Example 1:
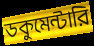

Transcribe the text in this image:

ডকুমেন্টারি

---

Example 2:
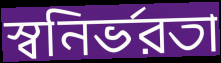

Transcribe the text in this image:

স্বনির্ভরতা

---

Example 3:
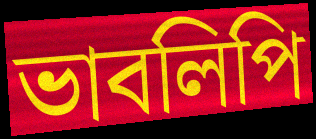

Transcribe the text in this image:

ভাবলিপি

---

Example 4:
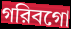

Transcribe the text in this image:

গরিবগো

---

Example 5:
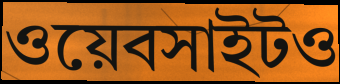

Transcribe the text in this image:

ওয়েবসাইটও